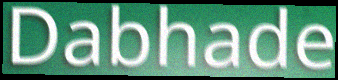
Dabhade